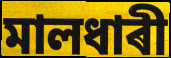
মালধাৰী